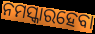
ନମସ୍କାରହେବା